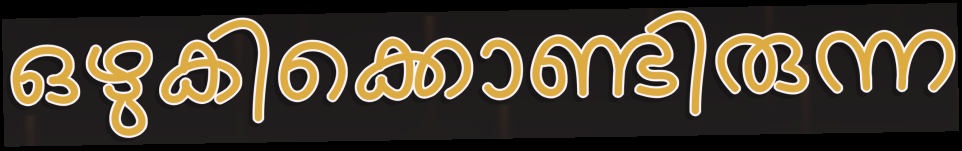
ഒഴുകിക്കൊണ്ടിരുന്ന